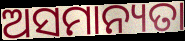
ଅସମାନ୍ୟତା